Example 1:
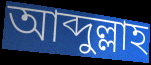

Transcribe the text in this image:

আব্দুল্লাহ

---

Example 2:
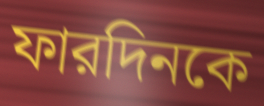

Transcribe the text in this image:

ফারদিনকে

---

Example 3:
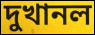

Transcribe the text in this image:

দুখানল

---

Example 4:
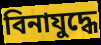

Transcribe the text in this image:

বিনাযুদ্ধে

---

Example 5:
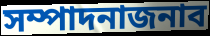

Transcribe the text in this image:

সম্পাদনাজনাব